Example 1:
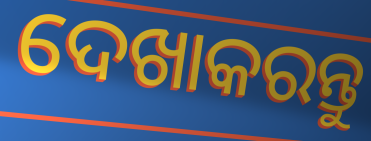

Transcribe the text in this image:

ଦେଖାକରନ୍ତୁ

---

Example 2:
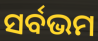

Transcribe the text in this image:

ସର୍ବଭମ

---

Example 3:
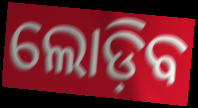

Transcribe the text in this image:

ଲୋଡ଼ିବ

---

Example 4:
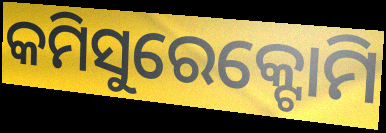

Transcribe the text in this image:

କମିସୁରେକ୍ଟୋମି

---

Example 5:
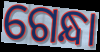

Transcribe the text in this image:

ଗେନ୍ଧା